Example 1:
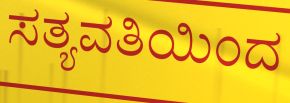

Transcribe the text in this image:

ಸತ್ಯವತಿಯಿಂದ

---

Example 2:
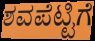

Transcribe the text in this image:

ಶವಪೆಟ್ಟಿಗೆ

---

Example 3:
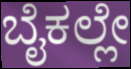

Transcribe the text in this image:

ಬೈಕಲ್ಲೇ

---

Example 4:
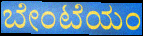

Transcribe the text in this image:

ಬೇಂಟೆಯಂ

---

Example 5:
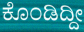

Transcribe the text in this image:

ಕೊಂಡಿದ್ದೀ